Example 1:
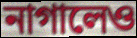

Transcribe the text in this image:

নাগালেও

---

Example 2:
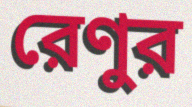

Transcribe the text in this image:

রেণুর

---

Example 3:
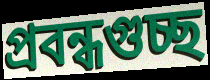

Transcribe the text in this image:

প্রবন্ধগুচ্ছ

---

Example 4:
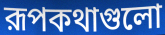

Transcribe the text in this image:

রূপকথাগুলো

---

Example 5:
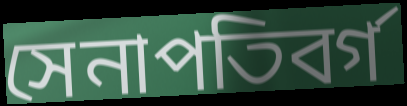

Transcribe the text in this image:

সেনাপতিবর্গ